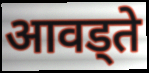
आवड्ते